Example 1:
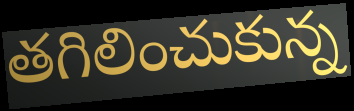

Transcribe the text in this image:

తగిలించుకున్న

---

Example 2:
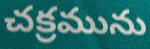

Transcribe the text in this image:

చక్రమును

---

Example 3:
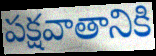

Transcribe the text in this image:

పక్షవాతానికి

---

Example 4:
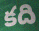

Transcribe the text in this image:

కది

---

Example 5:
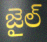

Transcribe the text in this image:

జైల్